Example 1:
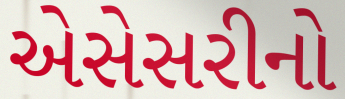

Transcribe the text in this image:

એસેસરીનો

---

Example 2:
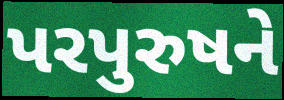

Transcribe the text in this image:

પરપુરુષને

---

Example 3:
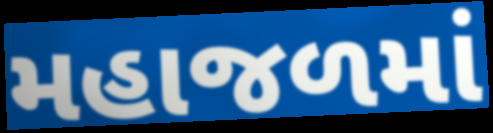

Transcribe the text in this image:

મહાજળમાં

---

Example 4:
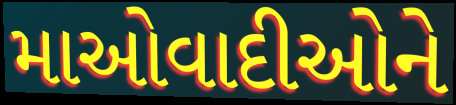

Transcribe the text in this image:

માઓવાદીઓને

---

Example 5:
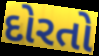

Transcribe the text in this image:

દોરતો